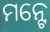
ମନ୍ଟେ